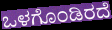
ಒಳಗೊಂಡಿರದೆ